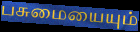
பசுமையையும்